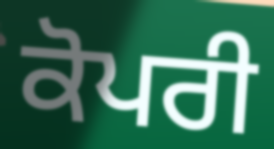
ਕੋਪਰੀ